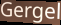
Gergel